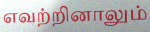
எவற்றினாலும்